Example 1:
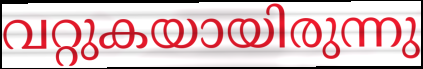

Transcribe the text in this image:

വറ്റുകയായിരുന്നു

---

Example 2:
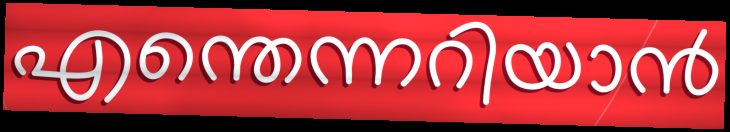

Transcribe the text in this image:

എന്തെന്നറിയാൻ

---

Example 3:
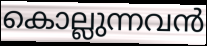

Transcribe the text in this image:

കൊല്ലുന്നവൻ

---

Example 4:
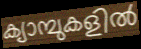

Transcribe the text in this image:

ക്യാമ്പുകളിൽ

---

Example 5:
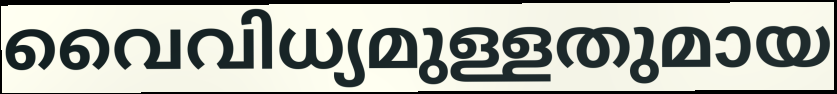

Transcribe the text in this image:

വൈവിധ്യമുള്ളതുമായ